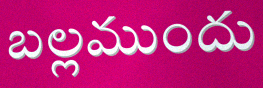
బల్లముందు